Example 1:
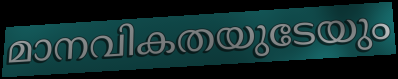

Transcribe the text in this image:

മാനവികതയുടേയും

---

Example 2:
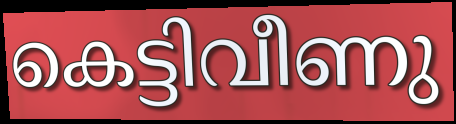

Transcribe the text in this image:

കെട്ടിവീണു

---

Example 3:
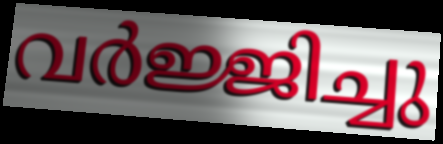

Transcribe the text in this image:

വർജ്ജിച്ചു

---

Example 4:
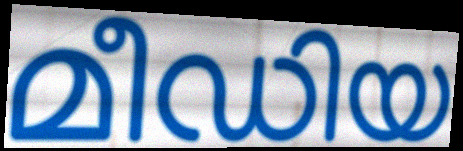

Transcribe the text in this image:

മീഡിയ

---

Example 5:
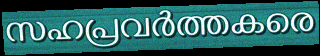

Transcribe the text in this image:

സഹപ്രവർത്തകരെ